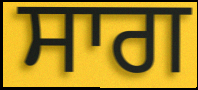
ਸਾਗ